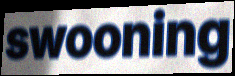
swooning